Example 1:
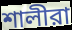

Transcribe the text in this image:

শালীরা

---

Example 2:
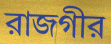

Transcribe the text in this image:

রাজগীর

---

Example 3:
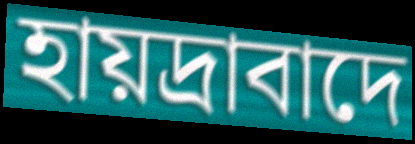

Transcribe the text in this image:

হায়দ্রাবাদে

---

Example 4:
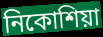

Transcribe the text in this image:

নিকোশিয়া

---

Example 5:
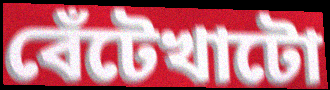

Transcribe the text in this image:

বেঁটেখাটো